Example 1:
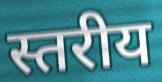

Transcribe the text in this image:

स्तरीय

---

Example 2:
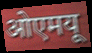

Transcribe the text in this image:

ओएमयू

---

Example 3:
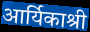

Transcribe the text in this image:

आर्यिकाश्री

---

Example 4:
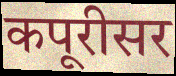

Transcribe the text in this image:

कपूरीसर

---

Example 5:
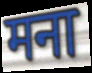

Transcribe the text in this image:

मना